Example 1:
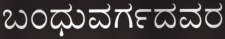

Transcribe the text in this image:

ಬಂಧುವರ್ಗದವರ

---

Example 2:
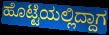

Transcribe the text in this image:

ಹೊಟ್ಟೆಯಲ್ಲಿದ್ದಾಗ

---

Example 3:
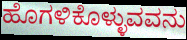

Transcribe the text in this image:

ಹೊಗಳಿಕೊಳ್ಳುವವನು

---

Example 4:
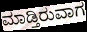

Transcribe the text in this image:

ಮಾಡ್ತಿರುವಾಗ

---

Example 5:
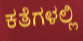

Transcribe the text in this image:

ಕತೆಗಳಲ್ಲಿ